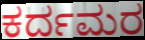
ಕರ್ದಮರ